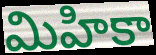
మిహికా